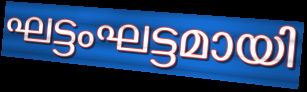
ഘട്ടംഘട്ടമായി